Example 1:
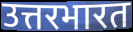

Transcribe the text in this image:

उत्तरभारत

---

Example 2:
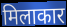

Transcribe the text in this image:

मिलाकार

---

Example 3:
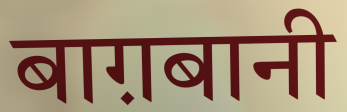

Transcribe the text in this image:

बाग़बानी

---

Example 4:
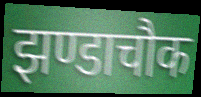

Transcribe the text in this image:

झण्डाचौक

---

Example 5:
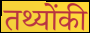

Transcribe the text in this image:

तथ्योंकी